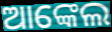
ଆଙ୍କେଲ